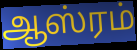
ஆஸ்ரம்